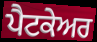
ਪੈਟਕੇਅਰ